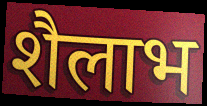
शैलाभ